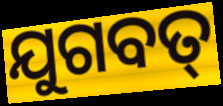
ଯୁଗବତ୍